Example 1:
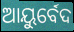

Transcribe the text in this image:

ଆୟୁର୍ବେଦ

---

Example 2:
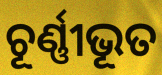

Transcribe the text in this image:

ଚୂର୍ଣ୍ଣୀଭୂତ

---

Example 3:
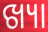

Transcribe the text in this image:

ଖ୍ୟା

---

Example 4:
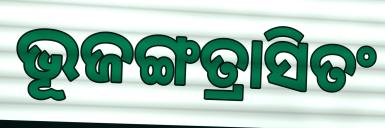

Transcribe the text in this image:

ଭୂଜଙ୍ଗତ୍ରାସିତଂ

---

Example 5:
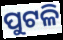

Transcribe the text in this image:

ପୁଟଳି